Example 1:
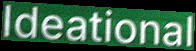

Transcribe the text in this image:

Ideational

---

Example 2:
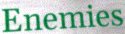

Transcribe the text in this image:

Enemies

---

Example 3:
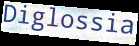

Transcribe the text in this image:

Diglossia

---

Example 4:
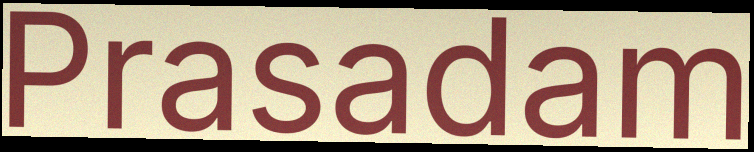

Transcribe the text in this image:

Prasadam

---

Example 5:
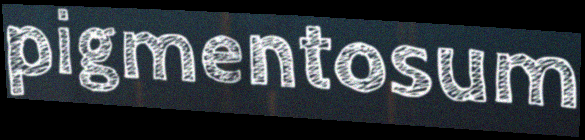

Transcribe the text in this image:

pigmentosum